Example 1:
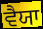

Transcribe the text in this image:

ਵੈਯਾ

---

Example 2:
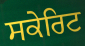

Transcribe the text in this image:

ਸਕੇਰਿਟ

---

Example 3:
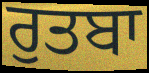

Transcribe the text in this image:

ਰੁਤਬਾ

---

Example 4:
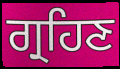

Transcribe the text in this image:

ਗ੍ਰਹਿਣ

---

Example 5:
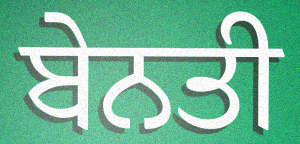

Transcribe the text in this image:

ਬੇਨਤੀ